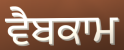
ਵੈਬਕਾਮ